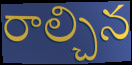
రాల్చిన